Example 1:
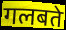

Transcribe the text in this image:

गलबते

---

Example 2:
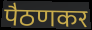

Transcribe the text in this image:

पैठणकर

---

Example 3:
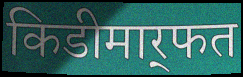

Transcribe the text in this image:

किडीमार्फत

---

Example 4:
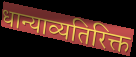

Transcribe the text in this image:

धान्याव्यतिरिक्त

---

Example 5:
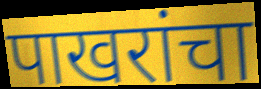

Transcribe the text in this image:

पाखरांचा